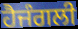
ਹੈਜੰਗਲੀ